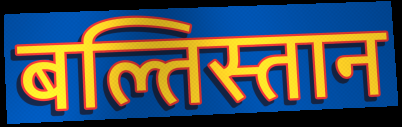
बल्तिस्तान